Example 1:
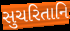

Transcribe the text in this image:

સુચરિતાનિ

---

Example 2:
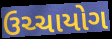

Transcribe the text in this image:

ઉચ્ચાયોગ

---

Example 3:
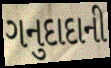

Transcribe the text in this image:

ગનુદાદાની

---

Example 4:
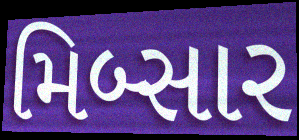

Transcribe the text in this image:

મિબ્સાર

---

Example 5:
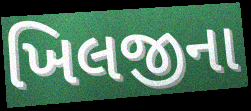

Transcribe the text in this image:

ખિલજીના